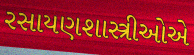
રસાયણશાસ્ત્રીઓએ